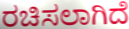
ರಚಿಸಲಾಗಿದೆ